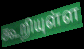
கூறியுள்ள